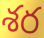
శర